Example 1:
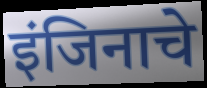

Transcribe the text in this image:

इंजिनाचे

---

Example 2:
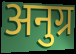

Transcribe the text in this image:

अनुग्र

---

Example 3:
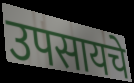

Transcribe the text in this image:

उपसायचे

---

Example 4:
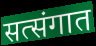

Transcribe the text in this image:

सत्संगात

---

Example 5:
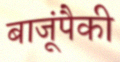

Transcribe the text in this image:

बाजूंपैकी